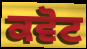
ਕਵੋਟ